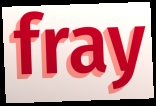
fray